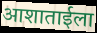
आशाताईला